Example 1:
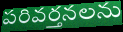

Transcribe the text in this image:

పరివర్తనలను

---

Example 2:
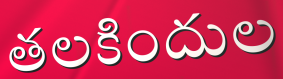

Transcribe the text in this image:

తలకిందుల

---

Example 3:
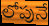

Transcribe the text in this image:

లోపునే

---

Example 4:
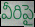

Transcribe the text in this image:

వీరిపై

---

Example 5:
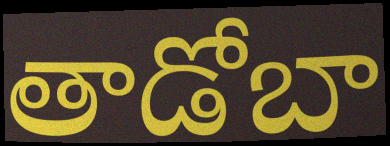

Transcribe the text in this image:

తాడోబా